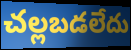
చల్లబడలేదు